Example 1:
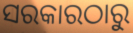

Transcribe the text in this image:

ସରକାରଠାରୁ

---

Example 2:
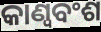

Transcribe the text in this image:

କାଣ୍ୱବଂଶ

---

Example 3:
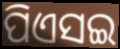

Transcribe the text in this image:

ପିଏସଇ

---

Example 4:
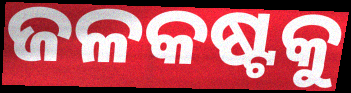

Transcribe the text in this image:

ଜଳକଷ୍ଟକୁ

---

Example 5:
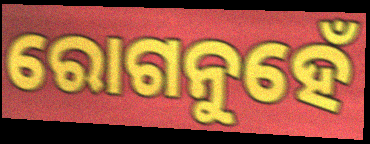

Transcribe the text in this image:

ରୋଗନୁହେଁ